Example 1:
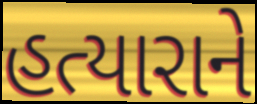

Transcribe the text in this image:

હત્યારાને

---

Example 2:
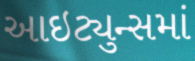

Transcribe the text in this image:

આઇટ્યુન્સમાં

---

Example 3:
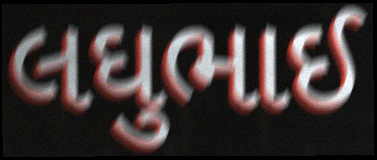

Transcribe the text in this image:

લઘુભાઈ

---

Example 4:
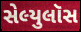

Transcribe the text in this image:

સેલ્યુલૉસ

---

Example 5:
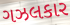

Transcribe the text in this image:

ગઝલકાર